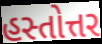
હસ્તોત્તર